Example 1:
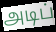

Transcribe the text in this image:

அடிப்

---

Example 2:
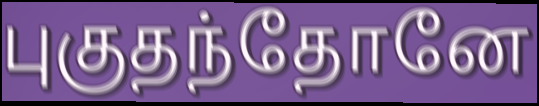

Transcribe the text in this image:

புகுதந்தோனே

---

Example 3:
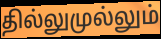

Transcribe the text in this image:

தில்லுமுல்லும்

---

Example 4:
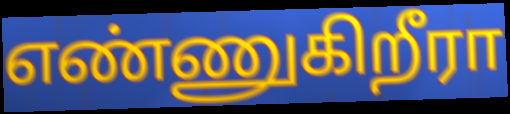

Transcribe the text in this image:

எண்ணுகிறீரா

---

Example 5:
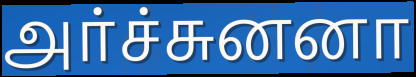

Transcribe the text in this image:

அர்ச்சுனனா